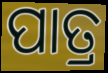
ପାତ୍ର